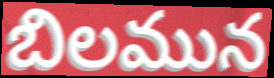
బిలమున